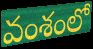
వంశంలో